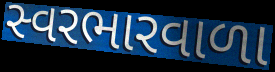
સ્વરભારવાળા